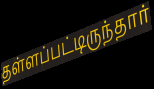
தள்ளப்பட்டிருந்தார்